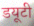
डयूटी